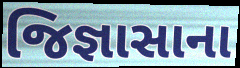
જિજ્ઞાસાના